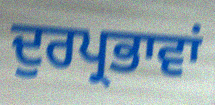
ਦੁਰਪ੍ਰਭਾਵਾਂ